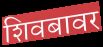
शिवबावर